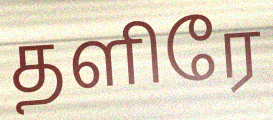
தளிரே